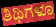
ತಿಥಿಗಳೂ